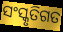
ସଂସ୍କୃତିଗତ